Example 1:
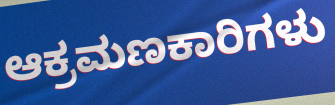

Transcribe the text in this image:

ಆಕ್ರಮಣಕಾರಿಗಳು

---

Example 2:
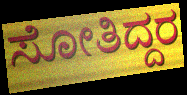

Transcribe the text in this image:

ಸೋತಿದ್ದರ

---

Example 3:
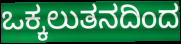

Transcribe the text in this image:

ಒಕ್ಕಲುತನದಿಂದ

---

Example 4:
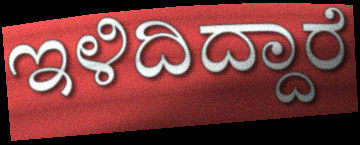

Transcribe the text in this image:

ಇಳಿದಿದ್ದಾರೆ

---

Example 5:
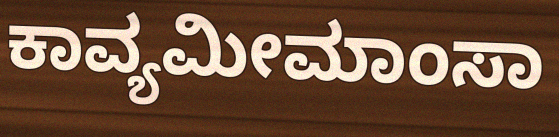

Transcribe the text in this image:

ಕಾವ್ಯಮೀಮಾಂಸಾ